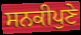
ਸਨਕੀਪੁਣੇ